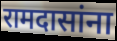
रामदासांना